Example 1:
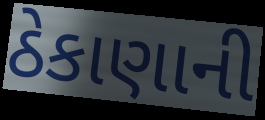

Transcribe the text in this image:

ઠેકાણાની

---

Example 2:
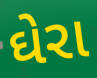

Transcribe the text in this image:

ઘેરા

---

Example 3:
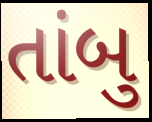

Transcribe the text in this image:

તાંબુ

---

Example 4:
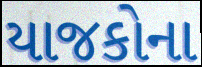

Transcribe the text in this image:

યાજકોના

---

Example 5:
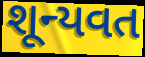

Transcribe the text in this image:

શૂન્યવત